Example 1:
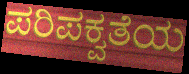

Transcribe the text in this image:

ಪರಿಪಕ್ವತೆಯ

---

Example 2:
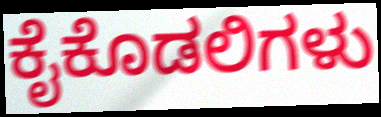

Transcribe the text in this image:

ಕೈಕೊಡಲಿಗಳು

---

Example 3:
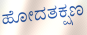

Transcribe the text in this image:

ಹೋದತಕ್ಷಣ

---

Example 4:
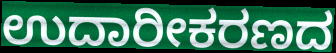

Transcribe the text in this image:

ಉದಾರೀಕರಣದ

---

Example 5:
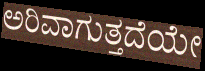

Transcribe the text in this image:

ಅರಿವಾಗುತ್ತದೆಯೇ